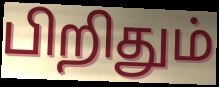
பிறிதும்